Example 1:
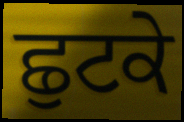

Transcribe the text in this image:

ਛੁਟਕੇ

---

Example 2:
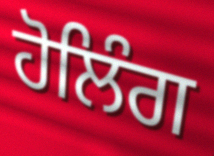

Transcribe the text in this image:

ਹੋਲਿੰਗ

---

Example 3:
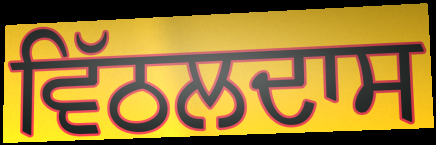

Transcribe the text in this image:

ਵਿੱਠਲਦਾਸ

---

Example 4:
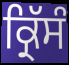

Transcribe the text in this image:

ਕ੍ਰਿੱਸੰ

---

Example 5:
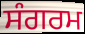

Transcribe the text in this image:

ਸੰਗਰਮ